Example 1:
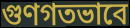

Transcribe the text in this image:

গুণগতভাবে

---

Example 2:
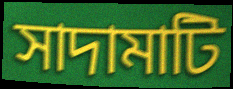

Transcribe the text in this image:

সাদামাটি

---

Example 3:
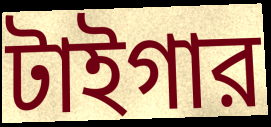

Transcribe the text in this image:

টাইগার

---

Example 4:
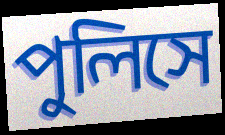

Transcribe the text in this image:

পুলিসে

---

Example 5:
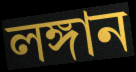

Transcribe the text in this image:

লঙ্গান